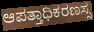
ಆಪತ್ತಾಧಿಕರಣಸ್ಸ